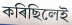
কৰিছিলেই